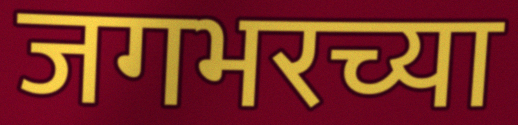
जगभरच्या